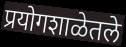
प्रयोगशाळेतले